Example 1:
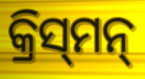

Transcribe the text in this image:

କ୍ରିସ୍‍ମନ୍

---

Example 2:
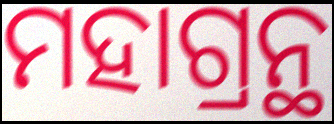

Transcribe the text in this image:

ମହାଗ୍ରନ୍ଥ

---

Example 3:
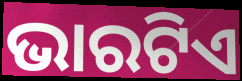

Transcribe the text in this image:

ଭାରଟିଏ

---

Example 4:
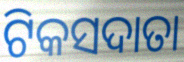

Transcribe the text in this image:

ଟିକସଦାତା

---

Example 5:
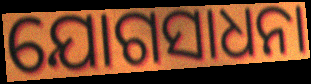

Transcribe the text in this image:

ଯୋଗସାଧନା